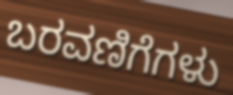
ಬರವಣಿಗೆಗಳು